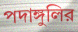
পদাঙ্গুলির